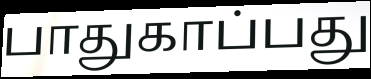
பாதுகாப்பது